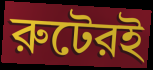
রুটেরই